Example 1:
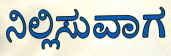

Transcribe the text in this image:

ನಿಲ್ಲಿಸುವಾಗ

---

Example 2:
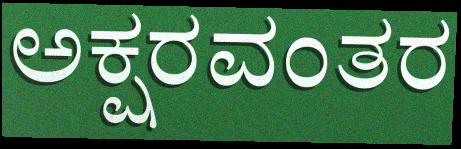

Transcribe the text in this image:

ಅಕ್ಷರವಂತರ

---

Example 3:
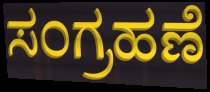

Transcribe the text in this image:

ಸಂಗ್ರಹಣೆ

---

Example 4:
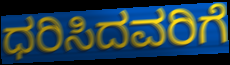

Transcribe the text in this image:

ಧರಿಸಿದವರಿಗೆ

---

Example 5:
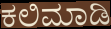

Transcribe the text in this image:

ಕಲಿಮಾಡಿ